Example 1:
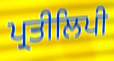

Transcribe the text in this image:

ਪ੍ਰਤੀਲਿਪੀ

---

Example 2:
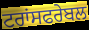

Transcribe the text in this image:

ਟਰਾਂਸਫਰੇਬਲ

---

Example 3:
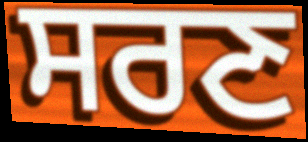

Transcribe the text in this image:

ਸਰਣ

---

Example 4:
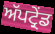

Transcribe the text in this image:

ਅੱਪਟ੍ਰੇਂਡ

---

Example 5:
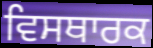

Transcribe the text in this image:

ਵਿਸਥਾਰਕ